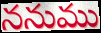
ననుము